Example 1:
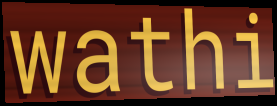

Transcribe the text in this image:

wathi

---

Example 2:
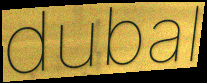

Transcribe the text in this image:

dubal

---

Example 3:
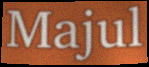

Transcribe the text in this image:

Majul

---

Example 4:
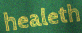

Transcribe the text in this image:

healeth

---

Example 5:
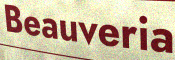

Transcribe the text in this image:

Beauveria